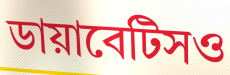
ডায়াবেটিসও